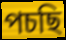
পচছি